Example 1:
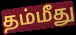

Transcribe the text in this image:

தம்மீது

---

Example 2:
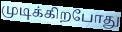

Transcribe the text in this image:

முடிக்கிறபோது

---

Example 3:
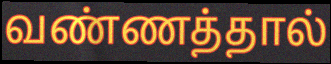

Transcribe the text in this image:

வண்ணத்தால்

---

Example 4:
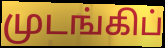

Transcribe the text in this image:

முடங்கிப்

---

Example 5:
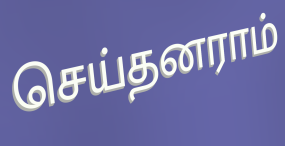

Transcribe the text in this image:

செய்தனராம்